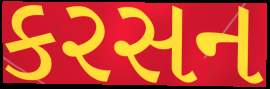
કરસન